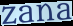
zana